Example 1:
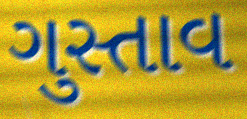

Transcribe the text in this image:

ગુસ્તાવ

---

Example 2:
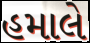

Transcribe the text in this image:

હમાલે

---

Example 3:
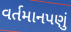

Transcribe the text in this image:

વર્તમાનપણું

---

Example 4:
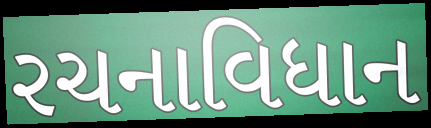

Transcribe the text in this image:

રચનાવિધાન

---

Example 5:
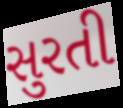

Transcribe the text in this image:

સુરતી